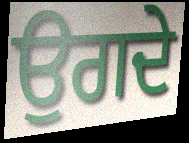
ਉਗਦੇ